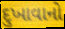
દુખાવાનો